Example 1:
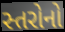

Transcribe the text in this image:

સ્તરોનો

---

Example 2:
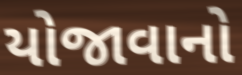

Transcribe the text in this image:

યોજાવાનો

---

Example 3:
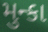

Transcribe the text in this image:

મુન્કા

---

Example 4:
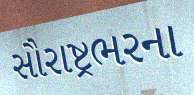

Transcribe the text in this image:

સૌરાષ્ટ્રભરના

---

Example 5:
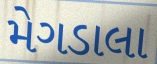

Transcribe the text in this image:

મેગડાલા